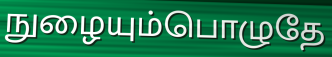
நுழையும்பொழுதே